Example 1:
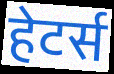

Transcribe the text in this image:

हेटर्स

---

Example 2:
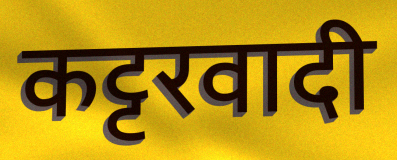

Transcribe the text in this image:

कट्टरवादी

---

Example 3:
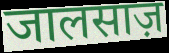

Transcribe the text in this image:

जालसाज़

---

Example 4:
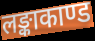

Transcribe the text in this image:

लङ्काकाण्ड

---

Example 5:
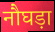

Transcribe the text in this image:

नौघड़ा